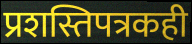
प्रशस्तिपत्रकही